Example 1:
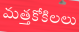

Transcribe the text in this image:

మత్తకోకిలలు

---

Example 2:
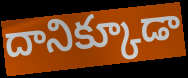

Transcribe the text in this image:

దానిక్కూడా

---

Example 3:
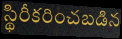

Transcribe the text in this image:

స్థిరీకరించబడిన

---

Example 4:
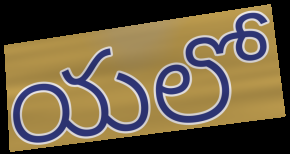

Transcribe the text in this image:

యలో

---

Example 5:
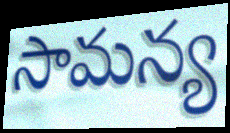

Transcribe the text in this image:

సామన్య